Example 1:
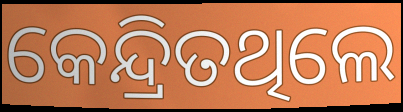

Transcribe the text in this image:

କେନ୍ଦ୍ରିତଥିଲେ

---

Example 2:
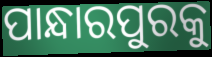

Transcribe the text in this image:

ପାନ୍ଧାରପୁରକୁ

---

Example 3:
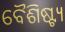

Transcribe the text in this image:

ବୈଶିଷ୍ଟ୍ୟ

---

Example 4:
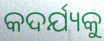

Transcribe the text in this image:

କଦର୍ଯ୍ୟକୁ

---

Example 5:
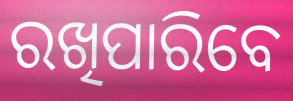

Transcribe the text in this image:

ରଖିପାରିବେ